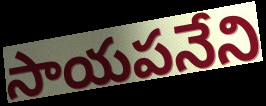
సాయపనేని